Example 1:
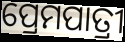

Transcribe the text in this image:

ପ୍ରେମପାତ୍ରୀ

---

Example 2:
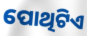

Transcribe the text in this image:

ପୋଥିଟିଏ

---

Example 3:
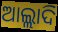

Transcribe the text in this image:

ଆଲ୍ଲାଦି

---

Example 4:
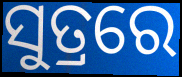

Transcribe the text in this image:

ସୁତ୍ରରେ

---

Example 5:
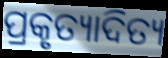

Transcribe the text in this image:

ପ୍ରକୃତ୍ୟାଦିତ୍ୟ